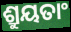
ଶ୍ରୁୟତାଂ